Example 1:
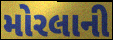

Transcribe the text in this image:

મોરલાની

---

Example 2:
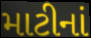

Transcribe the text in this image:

માટીનાં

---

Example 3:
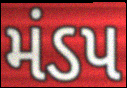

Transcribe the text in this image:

મંડપ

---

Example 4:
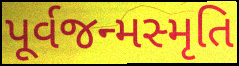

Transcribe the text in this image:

પૂર્વજન્મસ્મૃતિ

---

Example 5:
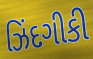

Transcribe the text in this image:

ઝિંદગીકી